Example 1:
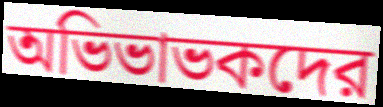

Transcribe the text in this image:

অভিভাভকদের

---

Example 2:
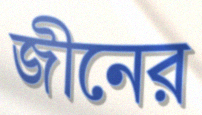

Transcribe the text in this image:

জীনের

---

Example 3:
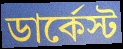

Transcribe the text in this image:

ডার্কেস্ট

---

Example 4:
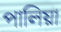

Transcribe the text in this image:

পালিয়া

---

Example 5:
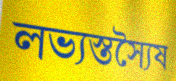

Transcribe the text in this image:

লভ্যস্তস্যৈষ